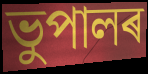
ভুপালৰ